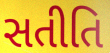
સતીતિ